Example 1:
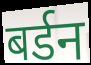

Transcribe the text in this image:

बर्डन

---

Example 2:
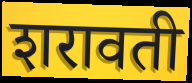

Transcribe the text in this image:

शरावती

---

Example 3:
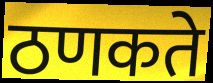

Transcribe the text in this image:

ठणकते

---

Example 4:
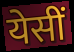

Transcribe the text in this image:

येसीं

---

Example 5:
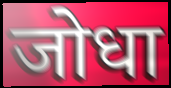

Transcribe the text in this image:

जोधा